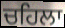
ਚਹਿਲਾ